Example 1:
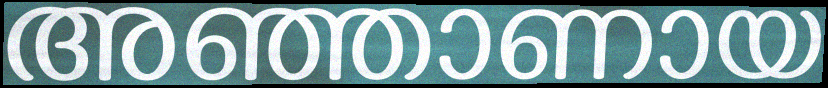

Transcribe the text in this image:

അഞ്ഞാണായ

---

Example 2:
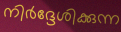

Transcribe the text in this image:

നിർദ്ദേശിക്കുന്ന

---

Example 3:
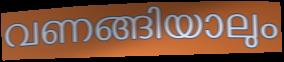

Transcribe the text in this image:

വണങ്ങിയാലും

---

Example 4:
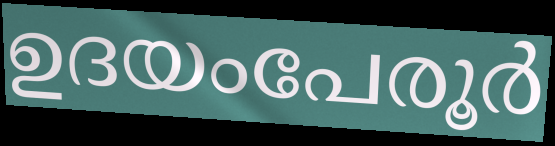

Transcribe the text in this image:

ഉദയംപേരൂർ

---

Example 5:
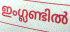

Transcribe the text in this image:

ഇംഗ്ലണ്ടിൽ